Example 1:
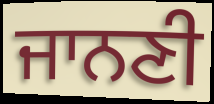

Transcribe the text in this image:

ਜਾਨਣੀ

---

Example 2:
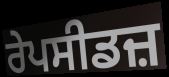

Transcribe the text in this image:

ਰੇਪਸੀਡਜ਼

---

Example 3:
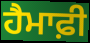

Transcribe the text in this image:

ਹੈਮਾਫ਼ੀ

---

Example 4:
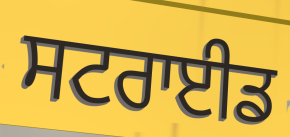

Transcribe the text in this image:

ਸਟਰਾਈਡ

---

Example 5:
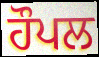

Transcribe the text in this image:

ਹੌਪਲ